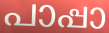
പാപ്പാ